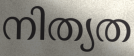
നിത്യത